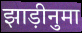
झाड़ीनुमा